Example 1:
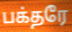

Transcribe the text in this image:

பக்தரே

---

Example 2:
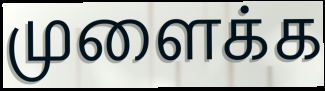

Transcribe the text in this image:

முளைக்க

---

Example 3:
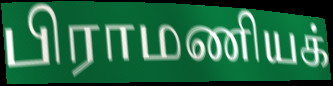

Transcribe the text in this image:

பிராமணியக்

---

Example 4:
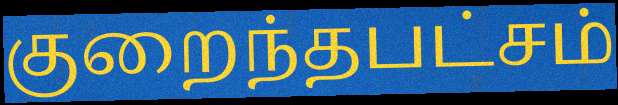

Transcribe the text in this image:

குறைந்தபட்சம்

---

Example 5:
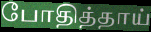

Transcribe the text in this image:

போதித்தாய்